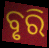
ବୃରି